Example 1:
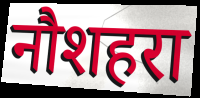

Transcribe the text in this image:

नौशहरा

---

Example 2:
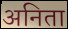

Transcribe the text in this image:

अनिता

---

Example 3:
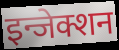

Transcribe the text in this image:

इन्जेक्शन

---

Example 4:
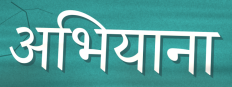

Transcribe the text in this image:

अभियाना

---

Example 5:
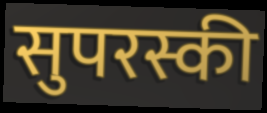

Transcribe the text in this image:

सुपरस्की